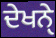
ਦੇਖਨੑੇ